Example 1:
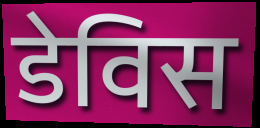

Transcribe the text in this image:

डेविस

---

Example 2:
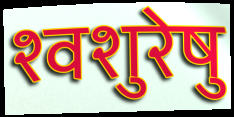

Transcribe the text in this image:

श्वशुरेषु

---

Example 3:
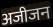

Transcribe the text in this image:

अजीजन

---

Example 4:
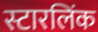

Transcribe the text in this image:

स्टारलिंक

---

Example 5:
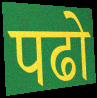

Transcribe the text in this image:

पढो